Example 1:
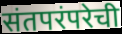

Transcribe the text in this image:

संतपरंपरेची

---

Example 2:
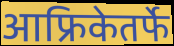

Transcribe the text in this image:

आफ्रिकेतर्फे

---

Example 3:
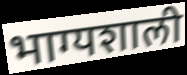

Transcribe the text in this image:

भाग्यशाली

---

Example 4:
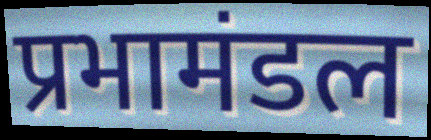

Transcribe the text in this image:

प्रभामंडल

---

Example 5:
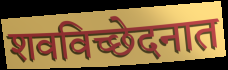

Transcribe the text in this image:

शवविच्छेदनात